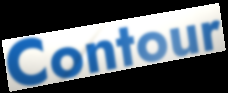
Contour